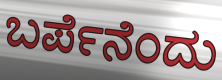
ಬರ್ಪೆನೆಂದು